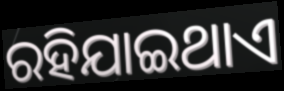
ରହିଯାଇଥାଏ